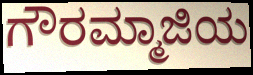
ಗೌರಮ್ಮಾಜಿಯ